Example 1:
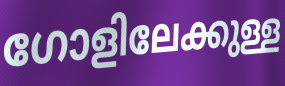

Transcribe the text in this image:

ഗോളിലേക്കുള്ള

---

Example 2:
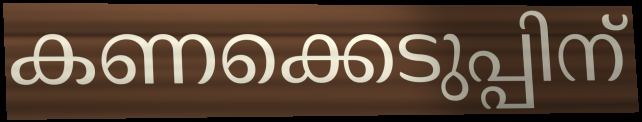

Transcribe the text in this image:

കണക്കെടുപ്പിന്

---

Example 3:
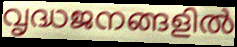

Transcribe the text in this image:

വൃദ്ധജനങ്ങളിൽ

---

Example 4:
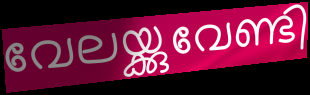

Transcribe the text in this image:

വേലയ്ക്കുവേണ്ടി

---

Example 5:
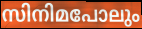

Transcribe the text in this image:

സിനിമപോലും